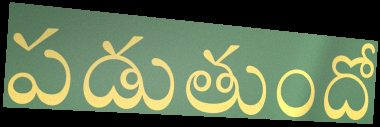
పడుతుందో